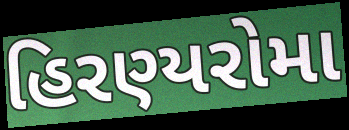
હિરણ્યરોમા